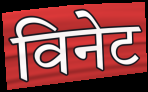
विनेट